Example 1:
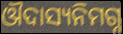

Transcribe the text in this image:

ଔଦାସ୍ୟନିମଗ୍ନ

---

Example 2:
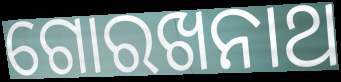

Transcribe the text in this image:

ଗୋରଖନାଥ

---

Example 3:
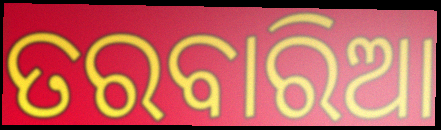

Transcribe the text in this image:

ତରବାରିଆ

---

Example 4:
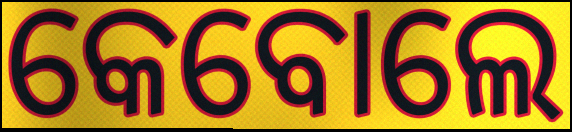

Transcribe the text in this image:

କେବୋଲେ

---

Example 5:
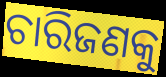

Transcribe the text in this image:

ଚାରିଜଣକୁ